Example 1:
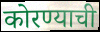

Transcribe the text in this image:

कोरण्याची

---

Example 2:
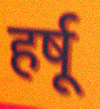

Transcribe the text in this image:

हर्षू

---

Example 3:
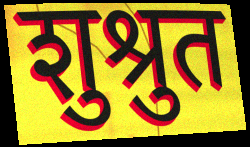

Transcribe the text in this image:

शुश्रुत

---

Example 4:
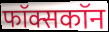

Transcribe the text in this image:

फॉक्सकॉन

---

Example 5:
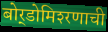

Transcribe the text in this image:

बोर्डोमिश्रणाची